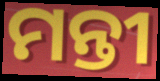
ମନ୍ତୀ